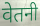
वेतनी